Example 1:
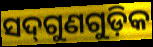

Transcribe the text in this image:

ସଦ୍‌ଗୁଣଗୁଡ଼ିକ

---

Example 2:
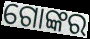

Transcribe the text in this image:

ଗୋଙ୍କର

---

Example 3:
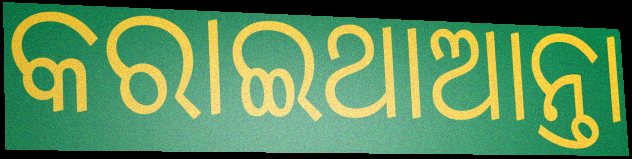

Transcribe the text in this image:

କରାଇଥାଆନ୍ତା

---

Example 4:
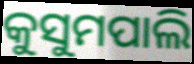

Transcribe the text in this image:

କୁସୁମପାଲି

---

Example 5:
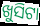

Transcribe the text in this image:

ଖୁସିଟା